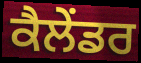
ਕੈਲੇਂਡਰ